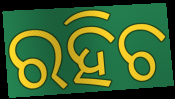
ରହିଚ